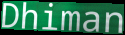
Dhiman